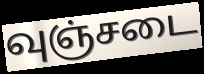
வுஞ்சடை